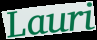
Lauri